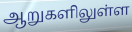
ஆறுகளிலுள்ள